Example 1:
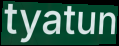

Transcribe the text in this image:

tyatun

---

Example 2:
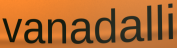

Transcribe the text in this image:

vanadalli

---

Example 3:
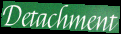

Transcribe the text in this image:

Detachment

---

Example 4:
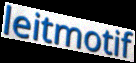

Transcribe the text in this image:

leitmotif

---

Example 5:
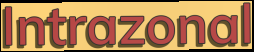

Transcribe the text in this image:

Intrazonal